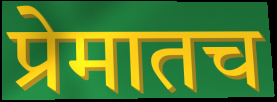
प्रेमातच